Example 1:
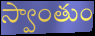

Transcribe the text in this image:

స్వాంతుం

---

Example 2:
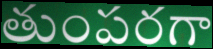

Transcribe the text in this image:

తుంపరగా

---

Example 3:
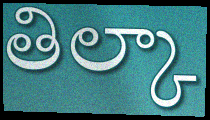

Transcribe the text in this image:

తిల్కా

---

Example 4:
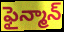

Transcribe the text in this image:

ఫైన్మాన్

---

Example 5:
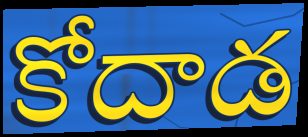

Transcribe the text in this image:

కోదాడ